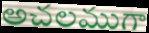
అచలముగా